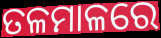
ତଳମାଳରେ